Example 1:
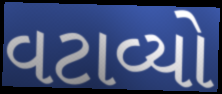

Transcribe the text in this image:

વટાવ્યો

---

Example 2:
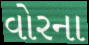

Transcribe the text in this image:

વોરના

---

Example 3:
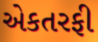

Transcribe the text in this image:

એકતરફી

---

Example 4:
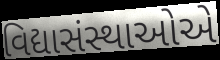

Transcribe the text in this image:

વિદ્યાસંસ્થાઓએ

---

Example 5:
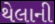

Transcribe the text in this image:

થેલાની